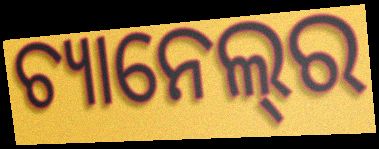
ଚ୍ୟାନେଲ୍‌ର